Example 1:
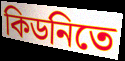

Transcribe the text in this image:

কিডনিতে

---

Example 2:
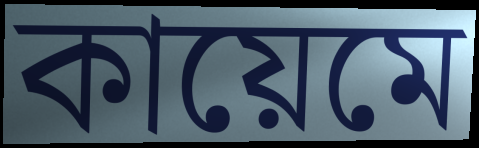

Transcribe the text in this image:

কায়েমে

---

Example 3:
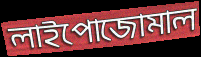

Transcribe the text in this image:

লাইপোজোমাল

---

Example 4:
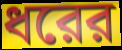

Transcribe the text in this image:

ধরের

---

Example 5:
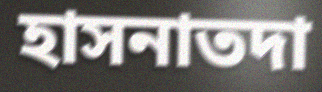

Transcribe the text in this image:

হাসনাতদা